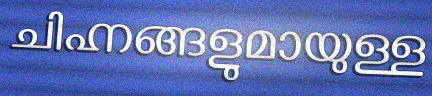
ചിഹ്നങ്ങളുമായുള്ള